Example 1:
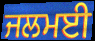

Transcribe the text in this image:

ਜਲਮਈ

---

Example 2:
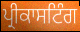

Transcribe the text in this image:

ਪ੍ਰੀਕਾਸਟਿੰਗ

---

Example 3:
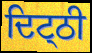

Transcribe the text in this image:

ਦਿਟ੍ਠੀ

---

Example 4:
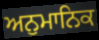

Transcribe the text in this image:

ਅਨੁਮਾਨਿਕ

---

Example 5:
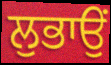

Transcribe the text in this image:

ਲੁਭਾਉਂ